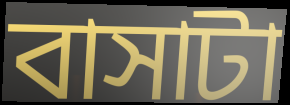
বাসাটা